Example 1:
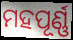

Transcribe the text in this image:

ମହପୂର୍ଣ୍ଣ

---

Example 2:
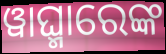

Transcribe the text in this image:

ୱାଘ୍ମାରେଙ୍କ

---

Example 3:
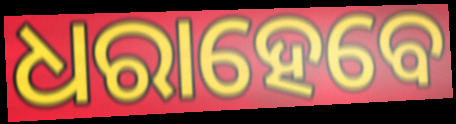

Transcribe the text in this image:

ଧରାହେବେ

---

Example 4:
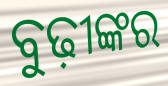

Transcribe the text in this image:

ବୁଢ଼ୀଙ୍କର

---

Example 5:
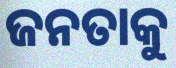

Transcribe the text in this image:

ଜନତାକୁ